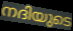
നദിയുടെ